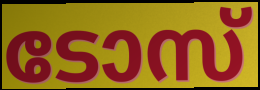
ടോസ്